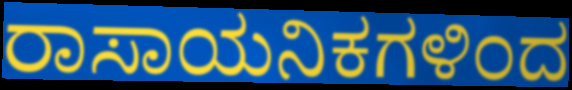
ರಾಸಾಯನಿಕಗಳಿಂದ